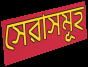
সেৱাসমূহ